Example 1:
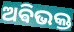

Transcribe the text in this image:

ଅଵିଭକ୍ତ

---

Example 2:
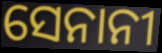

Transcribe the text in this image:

ସେନାନୀ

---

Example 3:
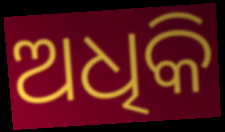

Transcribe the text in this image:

ଅଧିକି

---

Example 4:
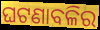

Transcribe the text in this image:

ଘଟଣାବଳିର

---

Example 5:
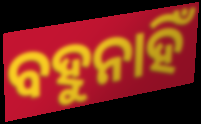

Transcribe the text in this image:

ବହୁନାହିଁ